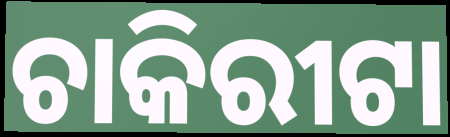
ଚାକିରୀଟା